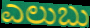
ಎಲುಬು